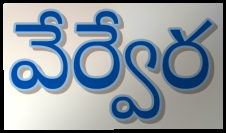
వేర్వేర